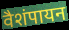
वैशंपायन